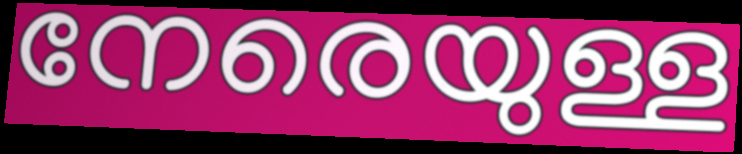
നേരെയുള്ള